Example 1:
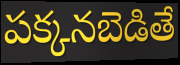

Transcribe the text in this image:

పక్కనబెడితే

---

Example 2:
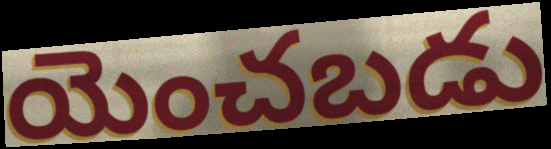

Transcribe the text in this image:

యెంచబడు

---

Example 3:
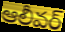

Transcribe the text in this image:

ఆలీవర్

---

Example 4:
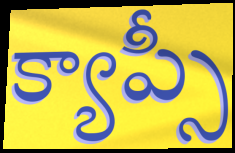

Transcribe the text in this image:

క్యాప్సీ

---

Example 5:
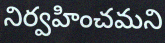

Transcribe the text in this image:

నిర్వహించమని